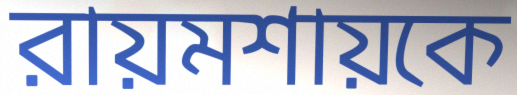
রায়মশায়কে